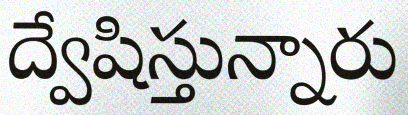
ద్వేషిస్తున్నారు